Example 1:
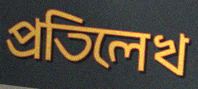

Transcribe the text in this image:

প্রতিলেখ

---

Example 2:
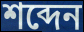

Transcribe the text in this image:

শব্দেন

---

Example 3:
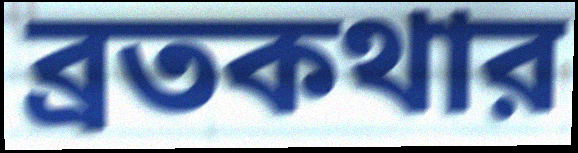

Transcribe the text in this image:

ব্রতকথার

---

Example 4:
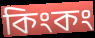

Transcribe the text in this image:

কিংকং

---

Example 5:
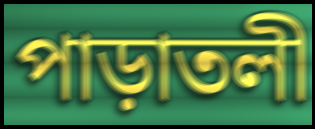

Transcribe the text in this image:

পাড়াতলী